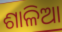
ଶାଳିଆ